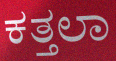
ಕತ್ತಲಾ